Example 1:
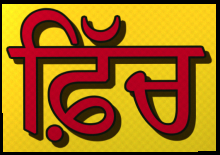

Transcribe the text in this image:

ਫ਼ਿੱਚ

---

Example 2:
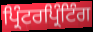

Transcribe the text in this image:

ਪ੍ਰਿੰਟਰਪ੍ਰਿੰਟਿੰਗ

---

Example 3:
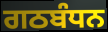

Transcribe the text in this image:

ਗਠਬੰਧਨ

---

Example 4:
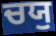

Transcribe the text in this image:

ਚਯੁ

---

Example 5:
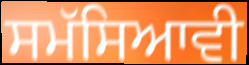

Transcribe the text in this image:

ਸਮੱਸਿਆਵੀ